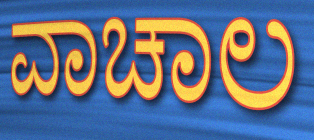
ವಾಚಾಲ